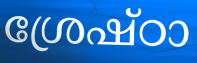
ശ്രേഷ്ഠാ